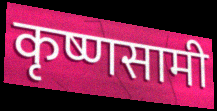
कृष्णसामी